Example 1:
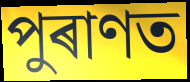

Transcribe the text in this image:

পুৰাণত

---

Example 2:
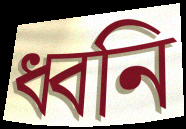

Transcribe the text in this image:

ধ্বনি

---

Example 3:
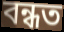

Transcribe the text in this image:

বন্ধত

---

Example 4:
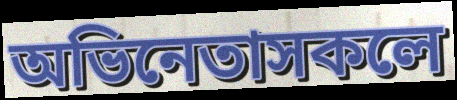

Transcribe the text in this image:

অভিনেতাসকলে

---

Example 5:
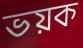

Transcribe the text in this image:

ভয়ক